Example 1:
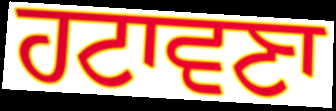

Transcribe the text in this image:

ਹਟਾਵਣਾ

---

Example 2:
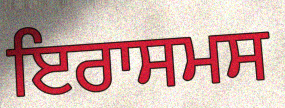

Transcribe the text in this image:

ਇਰਾਸਮਸ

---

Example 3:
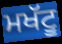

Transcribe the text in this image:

ਮਖੱਟੂ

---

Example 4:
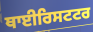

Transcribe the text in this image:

ਥਾਈਰਿਸਟਟਰ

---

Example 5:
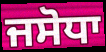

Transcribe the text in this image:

ਜਸੋਧਾ